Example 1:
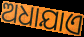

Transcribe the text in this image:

ଅଧାଯାଏ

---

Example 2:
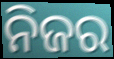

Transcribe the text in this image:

ନିଜର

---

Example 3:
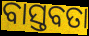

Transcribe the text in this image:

ବାସ୍ତବତା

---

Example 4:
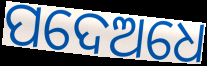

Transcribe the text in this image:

ପଦେଅଧେ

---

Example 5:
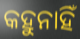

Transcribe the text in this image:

କହୁନାହିଁ